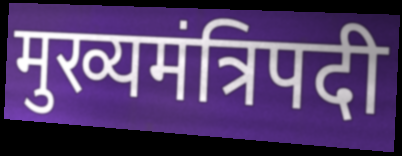
मुख्यमंत्रिपदी